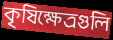
কৃষিক্ষেত্রগুলি